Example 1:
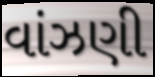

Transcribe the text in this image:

વાંઝણી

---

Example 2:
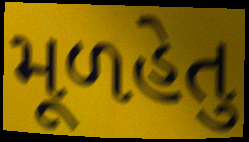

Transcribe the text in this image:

મૂળહેતુ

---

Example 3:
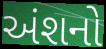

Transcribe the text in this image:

અંશનો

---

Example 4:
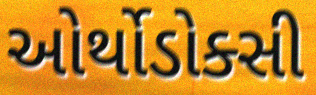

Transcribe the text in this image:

ઓર્થોડોક્સી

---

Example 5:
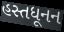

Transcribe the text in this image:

હસ્તધૂનન